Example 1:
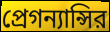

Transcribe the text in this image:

প্রেগন্যান্সির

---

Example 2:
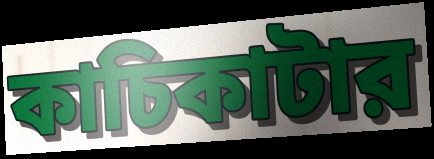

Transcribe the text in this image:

কাচিকাটার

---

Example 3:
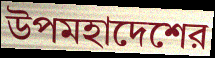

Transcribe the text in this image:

উপমহাদেশের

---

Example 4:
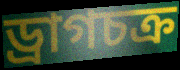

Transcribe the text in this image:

ড্রাগচক্র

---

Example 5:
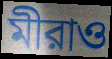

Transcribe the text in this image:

মীরাও